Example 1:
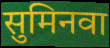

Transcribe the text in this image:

सुमिनवा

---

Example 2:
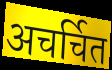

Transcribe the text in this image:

अचर्चित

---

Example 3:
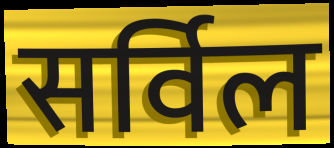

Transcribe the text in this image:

सर्विल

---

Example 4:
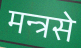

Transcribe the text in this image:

मन्त्रसे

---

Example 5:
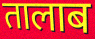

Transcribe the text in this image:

तालाब